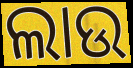
ଲାଉ